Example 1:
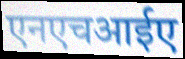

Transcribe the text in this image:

एनएचआईए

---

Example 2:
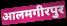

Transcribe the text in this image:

आलमगीरपुर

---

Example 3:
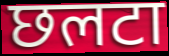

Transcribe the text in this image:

छलटा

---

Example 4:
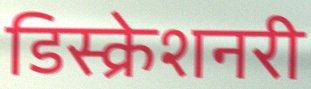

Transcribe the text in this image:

डिस्क्रेशनरी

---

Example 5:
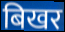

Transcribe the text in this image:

बिखर